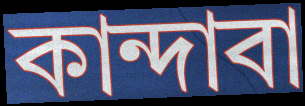
কান্দাবা